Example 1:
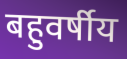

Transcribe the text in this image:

बहुवर्षीय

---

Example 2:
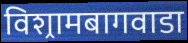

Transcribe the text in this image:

विश्रामबागवाडा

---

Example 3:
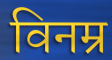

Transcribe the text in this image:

विनम्र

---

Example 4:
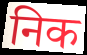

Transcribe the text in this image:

निक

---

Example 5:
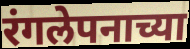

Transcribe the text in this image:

रंगलेपनाच्या